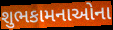
શુભકામનાઓના